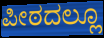
ಪೀಠದಲ್ಲೂ